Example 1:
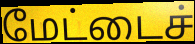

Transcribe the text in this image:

மேட்டைச்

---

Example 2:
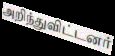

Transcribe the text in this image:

அறிந்துவிட்டனர்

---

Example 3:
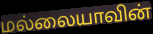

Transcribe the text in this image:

மல்லையாவின்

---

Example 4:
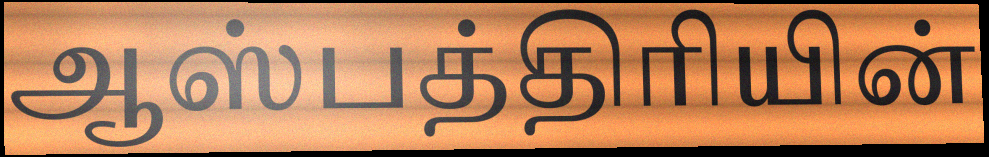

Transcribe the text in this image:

ஆஸ்பத்திரியின்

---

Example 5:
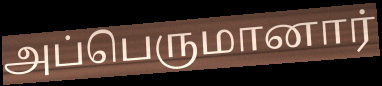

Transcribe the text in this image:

அப்பெருமானார்